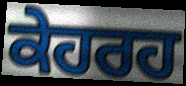
ਕੇਹਰਹ